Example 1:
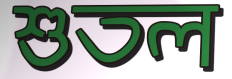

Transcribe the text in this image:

শুতল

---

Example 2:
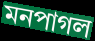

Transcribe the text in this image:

মনপাগল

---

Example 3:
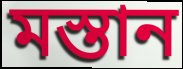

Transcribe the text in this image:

মস্তান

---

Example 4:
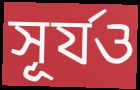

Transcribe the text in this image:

সূর্যও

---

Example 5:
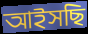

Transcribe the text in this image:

আইসছি